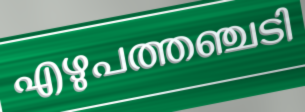
എഴുപത്തഞ്ചടി